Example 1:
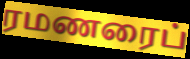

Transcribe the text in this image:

ரமணரைப்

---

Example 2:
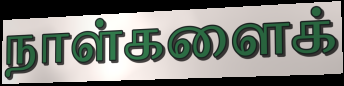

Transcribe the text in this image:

நாள்களைக்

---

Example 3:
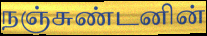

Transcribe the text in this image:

நஞ்சுண்டனின்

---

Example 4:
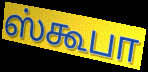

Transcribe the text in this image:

ஸ்கூபா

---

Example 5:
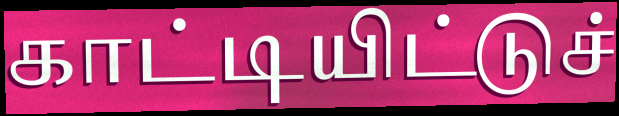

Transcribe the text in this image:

காட்டியிட்டுச்